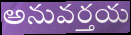
అనువర్తయ